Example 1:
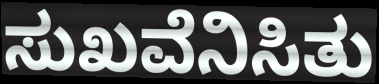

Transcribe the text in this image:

ಸುಖವೆನಿಸಿತು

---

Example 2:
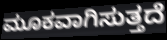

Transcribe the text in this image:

ಮೂಕವಾಗಿಸುತ್ತದೆ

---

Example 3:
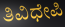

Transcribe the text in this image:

ತಿವಿಧೇಪಿ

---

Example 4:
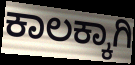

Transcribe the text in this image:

ಕಾಲಕ್ಕಾಗಿ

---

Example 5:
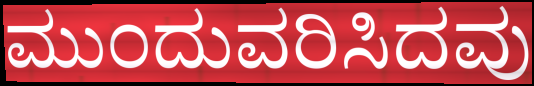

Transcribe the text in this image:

ಮುಂದುವರಿಸಿದವು